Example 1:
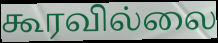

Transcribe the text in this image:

கூரவில்லை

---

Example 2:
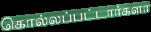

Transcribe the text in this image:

கொல்லப்பட்டார்களா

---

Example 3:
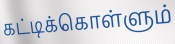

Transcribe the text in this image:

கட்டிக்கொள்ளும்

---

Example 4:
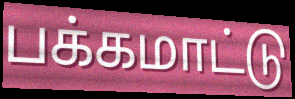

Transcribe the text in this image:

பக்கமாட்டு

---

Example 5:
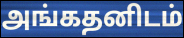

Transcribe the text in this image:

அங்கதனிடம்